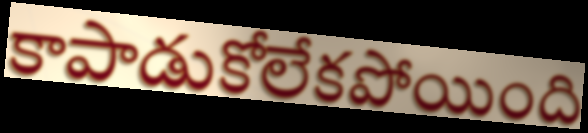
కాపాడుకోలేకపోయింది